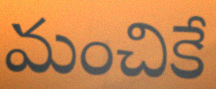
మంచికే